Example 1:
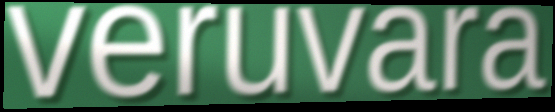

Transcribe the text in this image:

veruvara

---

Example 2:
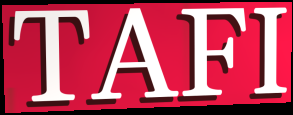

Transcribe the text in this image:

TAFI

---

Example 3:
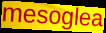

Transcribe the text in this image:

mesoglea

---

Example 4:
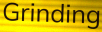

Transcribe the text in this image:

Grinding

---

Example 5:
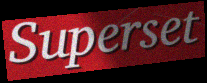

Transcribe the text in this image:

Superset